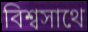
বিশ্বসাথে